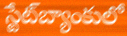
స్టేట్‌బ్యాంకులో